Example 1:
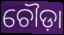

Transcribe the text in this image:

ଚୌଡ଼ା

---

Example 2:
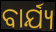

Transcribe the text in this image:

ବାର୍ଯ୍ୟ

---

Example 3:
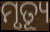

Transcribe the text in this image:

ମୃତ୍ୟୂ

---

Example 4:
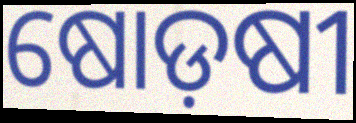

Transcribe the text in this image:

ଷୋଡ଼ଷୀ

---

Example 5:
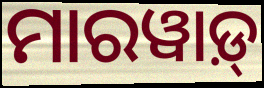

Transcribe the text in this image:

ମାରୱାଡ଼୍